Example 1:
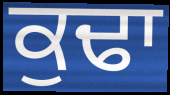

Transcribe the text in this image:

ਕੁਢਾ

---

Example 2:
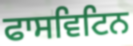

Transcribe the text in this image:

ਫਾਸਵਿਟਿਨ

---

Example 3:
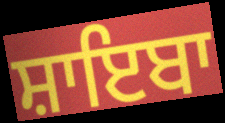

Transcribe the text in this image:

ਸ਼ਾਇਬਾ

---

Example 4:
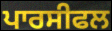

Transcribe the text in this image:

ਪਾਰਸੀਫਲ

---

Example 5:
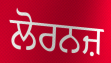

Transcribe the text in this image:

ਲੋਰਨਜ਼